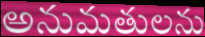
అనుమతులను